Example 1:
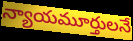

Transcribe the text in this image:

న్యాయమూర్తులనే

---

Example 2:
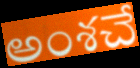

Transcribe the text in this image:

అంశచే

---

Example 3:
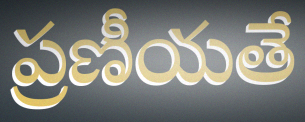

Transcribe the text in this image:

ప్రణీయతే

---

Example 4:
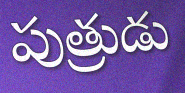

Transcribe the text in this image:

పుత్రుడు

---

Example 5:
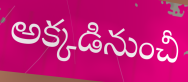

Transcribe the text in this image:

అక్కడినుంచీ